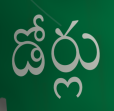
డోర్లు